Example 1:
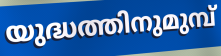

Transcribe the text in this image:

യുദ്ധത്തിനുമുമ്പ്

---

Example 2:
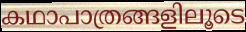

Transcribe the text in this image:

കഥാപാത്രങ്ങളിലൂടെ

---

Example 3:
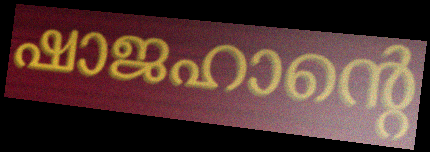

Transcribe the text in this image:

ഷാജഹാന്റെ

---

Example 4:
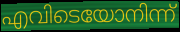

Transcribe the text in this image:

എവിടെയോനിന്ന്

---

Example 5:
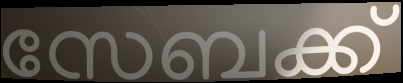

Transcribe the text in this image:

സേബക്ക്